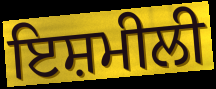
ਇਸ਼ਮੀਲੀ